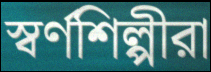
স্বর্ণশিল্পীরা